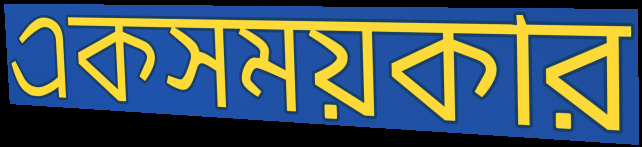
একসময়কার